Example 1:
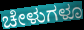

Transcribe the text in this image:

ಚೇಳುಗಳೂ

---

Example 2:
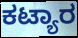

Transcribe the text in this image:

ಕಟ್ಯಾರ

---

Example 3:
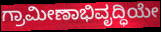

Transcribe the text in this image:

ಗ್ರಾಮೀಣಾಭಿವೃದ್ಧಿಯೇ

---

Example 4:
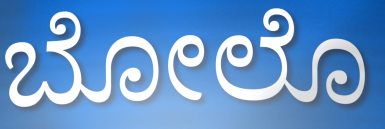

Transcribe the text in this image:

ಬೋಲೊ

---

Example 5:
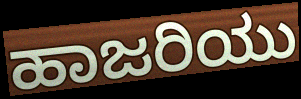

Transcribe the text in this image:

ಹಾಜರಿಯು